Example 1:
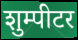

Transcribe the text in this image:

शुम्पीटर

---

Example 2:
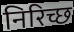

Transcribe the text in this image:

निरिच्छ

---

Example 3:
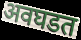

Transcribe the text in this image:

अवघडत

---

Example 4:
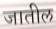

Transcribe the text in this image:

जातील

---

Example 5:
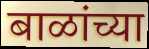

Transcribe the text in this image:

बाळांच्या